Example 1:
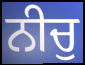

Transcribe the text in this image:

ਨੀਚੁ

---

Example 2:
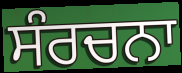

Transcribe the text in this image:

ਸੰਰਚਨਾ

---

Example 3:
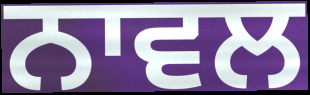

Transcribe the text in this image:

ਨਾਵਲ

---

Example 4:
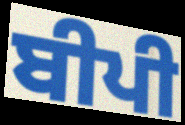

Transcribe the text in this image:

ਬੀਪੀ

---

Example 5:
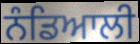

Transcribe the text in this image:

ਨੰਡਿਆਲੀ